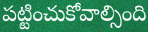
పట్టించుకోవాల్సింది